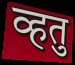
व्हतु